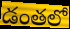
డంతలో